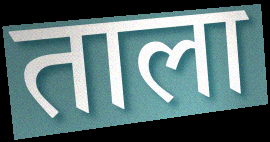
ताला